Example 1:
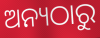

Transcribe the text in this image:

ଅନ୍ୟଠାରୁ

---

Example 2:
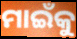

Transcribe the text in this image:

ମାଇଁକୁ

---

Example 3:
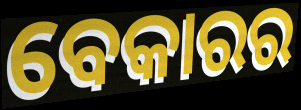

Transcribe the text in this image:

ବେକାରର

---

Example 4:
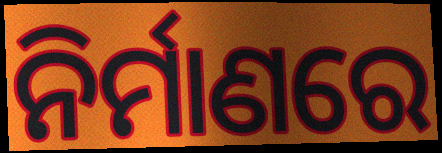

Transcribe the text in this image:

ନିର୍ମାଣରେ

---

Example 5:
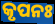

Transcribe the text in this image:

କୃପନଃ